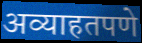
अव्याहतपणे